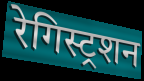
रेगिस्ट्रशन